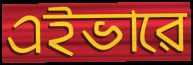
এইভাৱে